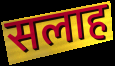
सलाह